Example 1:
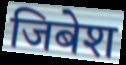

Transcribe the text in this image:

जिबेश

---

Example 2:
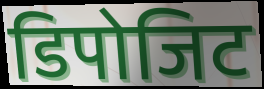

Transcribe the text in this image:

डिपोजिट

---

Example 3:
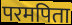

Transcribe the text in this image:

परमपिता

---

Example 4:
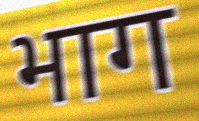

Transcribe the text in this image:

भाग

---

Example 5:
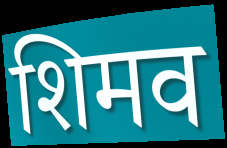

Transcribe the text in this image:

शिमव